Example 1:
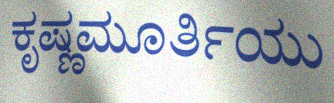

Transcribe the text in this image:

ಕೃಷ್ಣಮೂರ್ತಿಯು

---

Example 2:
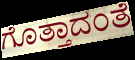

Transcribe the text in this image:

ಗೊತ್ತಾದಂತೆ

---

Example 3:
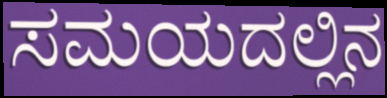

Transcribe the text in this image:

ಸಮಯದಲ್ಲಿನ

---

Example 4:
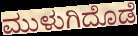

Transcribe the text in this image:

ಮುಳುಗಿದೊಡೆ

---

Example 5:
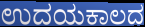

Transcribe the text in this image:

ಉದಯಕಾಲದ